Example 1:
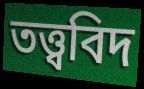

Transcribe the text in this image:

তত্ত্ববিদ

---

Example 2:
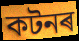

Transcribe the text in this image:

কটনৰ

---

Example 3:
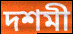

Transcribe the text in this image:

দশমী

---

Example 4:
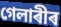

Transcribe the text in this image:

গেলাৰীৰ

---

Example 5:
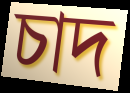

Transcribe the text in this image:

চাদ